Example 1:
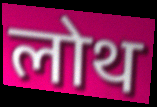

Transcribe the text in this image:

लोथ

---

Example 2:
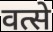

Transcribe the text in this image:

वत्से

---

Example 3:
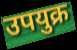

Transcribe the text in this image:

उपयुक्र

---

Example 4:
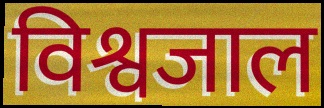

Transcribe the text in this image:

विश्वजाल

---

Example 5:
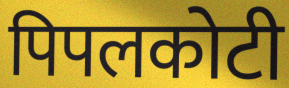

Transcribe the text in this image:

पिपलकोटी